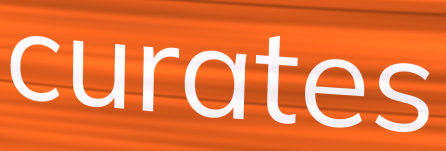
curates